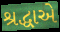
શ્રદ્ધાએ